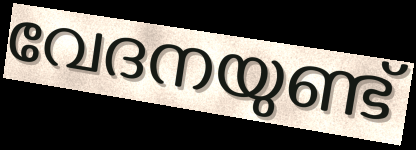
വേദനയുണ്ട്